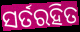
ସର୍ତରହିତ